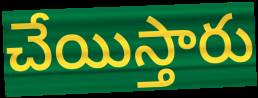
చేయిస్తారు